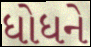
ધોધને